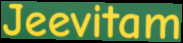
Jeevitam